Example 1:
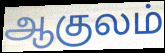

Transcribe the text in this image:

ஆகுலம்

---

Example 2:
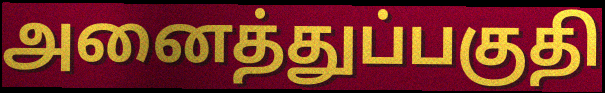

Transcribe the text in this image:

அனைத்துப்பகுதி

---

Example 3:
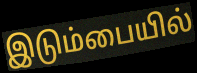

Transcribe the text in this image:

இடும்பையில்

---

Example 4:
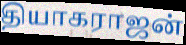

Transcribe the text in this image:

தியாகராஜன்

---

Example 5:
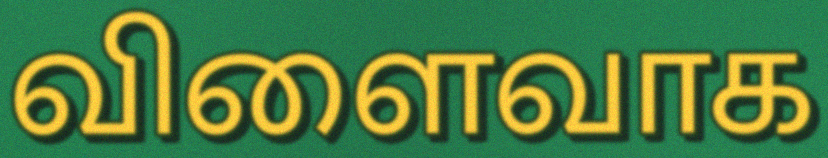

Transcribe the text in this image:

விளைவாக